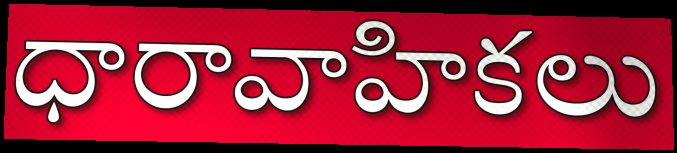
ధారావాహికలు